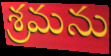
శ్రమను